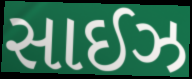
સાઈઝ